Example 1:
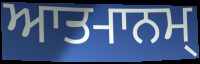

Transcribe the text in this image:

ਆਤ੍ਮਾਨਮ੍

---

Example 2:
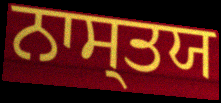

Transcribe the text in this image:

ਨਾਸ੍ਤਯ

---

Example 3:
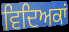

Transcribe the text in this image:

ਵਿਦਿਅਕਾਂ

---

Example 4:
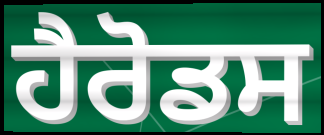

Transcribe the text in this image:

ਹੈਰੋਡਸ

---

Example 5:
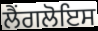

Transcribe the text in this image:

ਲੈਂਗਲੋਇਸ